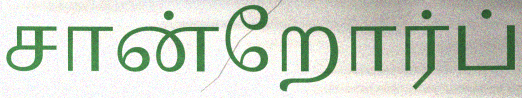
சான்றோர்ப்